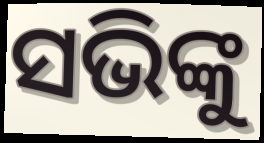
ସଭିଙ୍କୁ